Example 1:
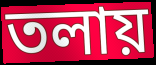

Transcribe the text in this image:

তলায়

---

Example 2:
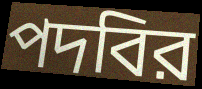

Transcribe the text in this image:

পদবির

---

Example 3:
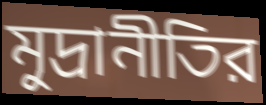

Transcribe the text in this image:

মুদ্রানীতির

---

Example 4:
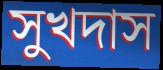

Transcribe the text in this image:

সুখদাস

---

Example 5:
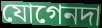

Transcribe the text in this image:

যোগেনদা